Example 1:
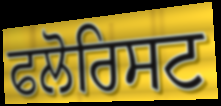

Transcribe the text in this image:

ਫਲੋਰਿਸਟ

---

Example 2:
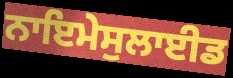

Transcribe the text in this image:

ਨਾਇਮੇਸੁਲਾਈਡ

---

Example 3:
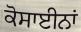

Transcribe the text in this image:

ਕੋਸਾਈਨਾਂ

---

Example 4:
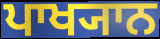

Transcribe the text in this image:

ਪਾਖ੍ਯਾਨ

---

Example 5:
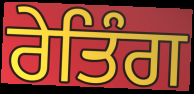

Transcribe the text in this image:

ਰੇਤਿੰਗ